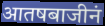
आतषबाजीनं